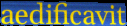
aedificavit